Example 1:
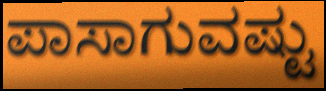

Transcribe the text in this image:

ಪಾಸಾಗುವಷ್ಟು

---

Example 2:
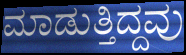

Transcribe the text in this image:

ಮಾಡುತ್ತಿದ್ದವು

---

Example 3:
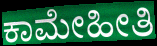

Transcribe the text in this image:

ಕಾಮೇಹೀತಿ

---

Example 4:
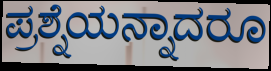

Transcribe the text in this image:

ಪ್ರಶ್ನೆಯನ್ನಾದರೂ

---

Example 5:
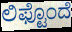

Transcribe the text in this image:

ಲಿಫ್ಟೊಂದೆ